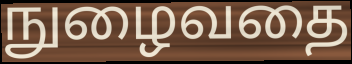
நுழைவதை